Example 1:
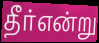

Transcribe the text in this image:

தீர்என்று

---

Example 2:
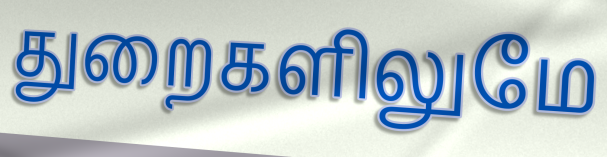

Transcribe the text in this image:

துறைகளிலுமே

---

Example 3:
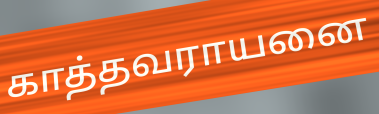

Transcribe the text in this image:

காத்தவராயனை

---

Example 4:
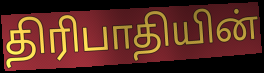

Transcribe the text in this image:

திரிபாதியின்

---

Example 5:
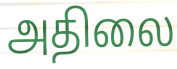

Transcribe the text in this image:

அதிலை